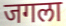
जगला